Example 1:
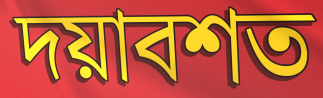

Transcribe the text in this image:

দয়াবশত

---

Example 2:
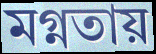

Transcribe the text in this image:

মগ্নতায়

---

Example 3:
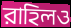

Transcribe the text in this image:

রাহিলও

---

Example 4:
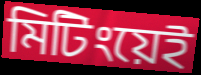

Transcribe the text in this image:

মিটিংয়েই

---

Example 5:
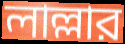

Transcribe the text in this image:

লাল্লার